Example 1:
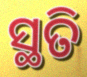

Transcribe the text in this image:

ସ୍ଥତି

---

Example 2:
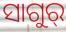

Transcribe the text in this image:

ସାଗୁର୍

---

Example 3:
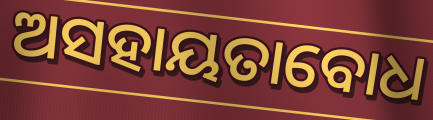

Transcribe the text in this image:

ଅସହାୟତାବୋଧ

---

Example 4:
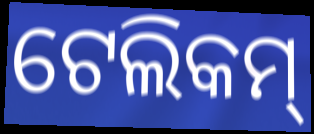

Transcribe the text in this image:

ଟେଲିକମ୍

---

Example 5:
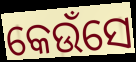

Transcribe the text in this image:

କେଉଁସେ